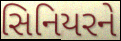
સિનિયરને